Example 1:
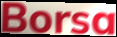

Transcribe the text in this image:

Borsa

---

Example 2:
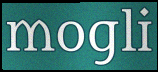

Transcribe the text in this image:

mogli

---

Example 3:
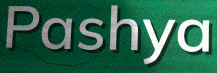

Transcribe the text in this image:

Pashya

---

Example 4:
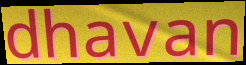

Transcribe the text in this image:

dhavan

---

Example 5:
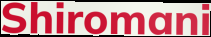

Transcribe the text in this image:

Shiromani